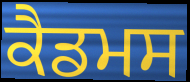
ਕੈਡਮਸ